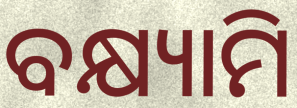
ବକ୍ଷ୍ୟାମି